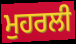
ਮੁਹਰਲੀ